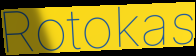
Rotokas